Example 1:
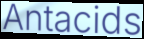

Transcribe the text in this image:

Antacids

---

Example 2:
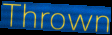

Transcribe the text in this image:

Thrown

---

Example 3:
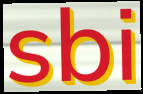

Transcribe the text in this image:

sbi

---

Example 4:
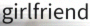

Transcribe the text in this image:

girlfriend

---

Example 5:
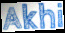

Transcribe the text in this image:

Akhi